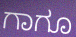
ಗಾಗೂ